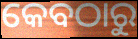
କେବଠାରୁ